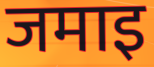
जमाइ